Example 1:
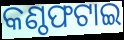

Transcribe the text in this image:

କଣ୍ଠଫଟାଇ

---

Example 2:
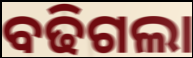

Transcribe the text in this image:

ବଢିଗଲା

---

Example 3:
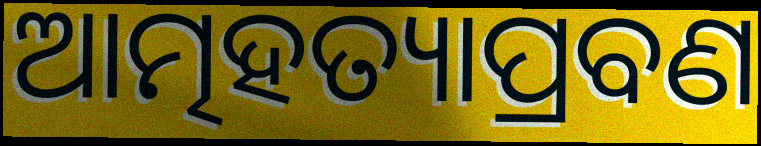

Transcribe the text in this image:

ଆତ୍ମହତ୍ୟାପ୍ରବଣ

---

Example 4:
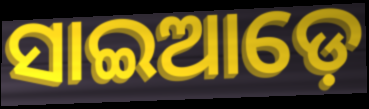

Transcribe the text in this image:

ସାଇଆଡ଼େ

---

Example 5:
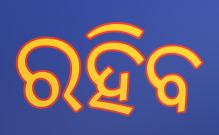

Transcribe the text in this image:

ରହିବ